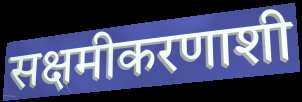
सक्षमीकरणाशी